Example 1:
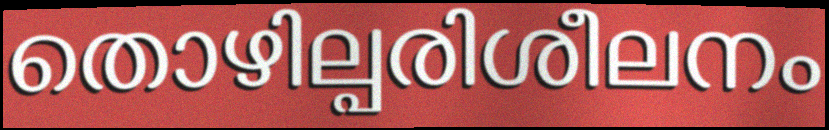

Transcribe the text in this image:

തൊഴില്പരിശീലനം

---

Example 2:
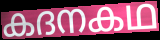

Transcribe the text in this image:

കദനകഥ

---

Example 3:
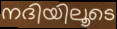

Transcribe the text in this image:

നദിയിലൂടെ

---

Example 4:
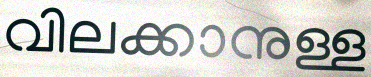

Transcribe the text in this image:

വിലക്കാനുള്ള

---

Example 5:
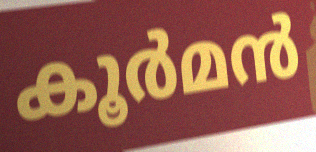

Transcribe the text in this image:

കൂർമൻ